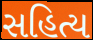
સહિત્ય